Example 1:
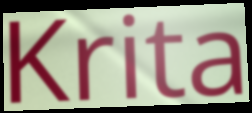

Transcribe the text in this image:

Krita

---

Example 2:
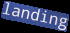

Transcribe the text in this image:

landing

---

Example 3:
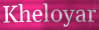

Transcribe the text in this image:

Kheloyar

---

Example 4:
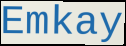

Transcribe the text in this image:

Emkay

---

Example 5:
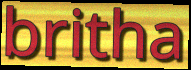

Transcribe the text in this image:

britha